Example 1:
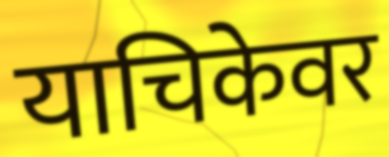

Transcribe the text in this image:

याचिकेवर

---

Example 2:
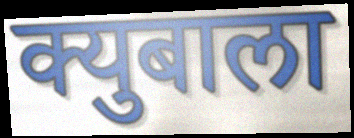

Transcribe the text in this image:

क्युबाला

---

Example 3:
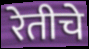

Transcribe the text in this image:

रेतीचे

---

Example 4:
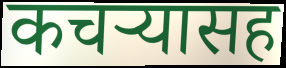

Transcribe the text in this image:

कचऱ्यासह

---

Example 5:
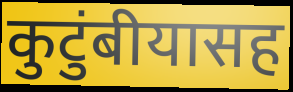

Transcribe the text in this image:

कुटुंबीयासह